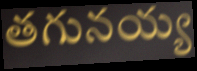
తగునయ్య